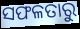
ସଫଳତାରୁ